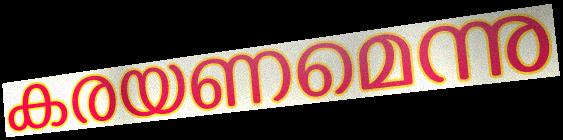
കരയണമെന്നു